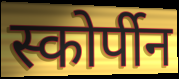
स्कोर्पीन